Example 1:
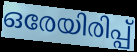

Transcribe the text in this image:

ഒരേയിരിപ്പ്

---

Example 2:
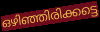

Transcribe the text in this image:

ഒഴിഞ്ഞിരിക്കട്ടെ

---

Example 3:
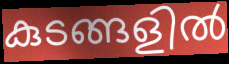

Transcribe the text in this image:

കുടങ്ങളിൽ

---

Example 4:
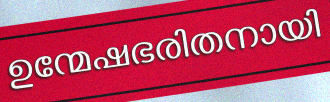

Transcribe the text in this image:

ഉന്മേഷഭരിതനായി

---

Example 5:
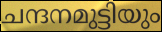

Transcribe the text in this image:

ചന്ദനമുട്ടിയും